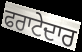
ਫਰਾਟੇਦਾਰ